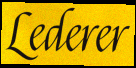
Lederer